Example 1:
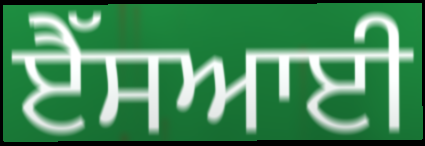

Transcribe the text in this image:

ਏੈੱਸਆਈ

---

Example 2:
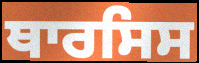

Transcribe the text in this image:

ਥਾਰਸਿਸ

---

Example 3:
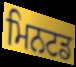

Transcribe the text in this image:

ਮਿਨਟਡ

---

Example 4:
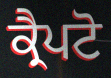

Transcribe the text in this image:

ਕ੍ਰੈਪਟੋ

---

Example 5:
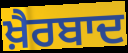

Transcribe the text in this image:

ਖ਼ੈਰਬਾਦ